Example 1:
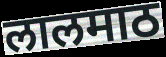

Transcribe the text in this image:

लालमाठ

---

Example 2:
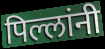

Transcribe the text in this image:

पिल्लांनी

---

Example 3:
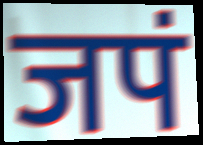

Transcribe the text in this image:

जपं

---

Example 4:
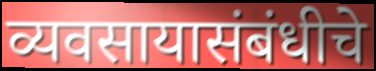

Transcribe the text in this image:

व्यवसायासंबंधीचे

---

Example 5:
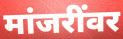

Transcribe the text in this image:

मांजरींवर